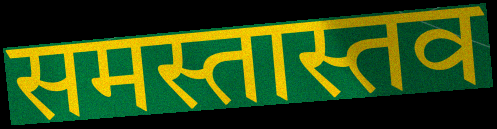
समस्तास्तव